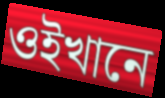
ওইখানে